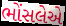
ભોંસલેએ